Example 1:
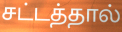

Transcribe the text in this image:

சட்டத்தால்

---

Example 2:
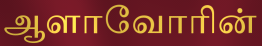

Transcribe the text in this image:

ஆளாவோரின்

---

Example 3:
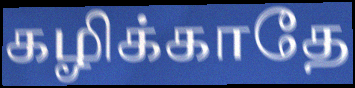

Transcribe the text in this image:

கழிக்காதே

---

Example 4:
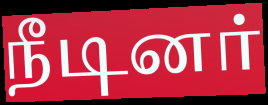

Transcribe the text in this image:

நீடினர்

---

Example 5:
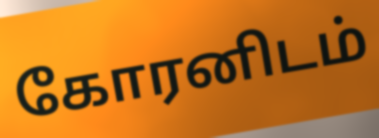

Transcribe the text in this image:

கோரனிடம்